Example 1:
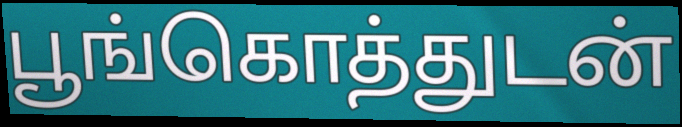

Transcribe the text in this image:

பூங்கொத்துடன்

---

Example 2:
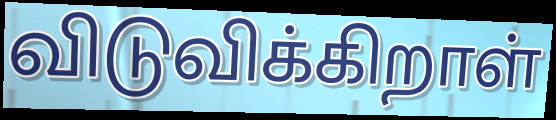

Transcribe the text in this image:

விடுவிக்கிறாள்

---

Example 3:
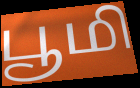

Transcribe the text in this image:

பூமி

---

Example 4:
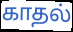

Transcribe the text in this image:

காதல்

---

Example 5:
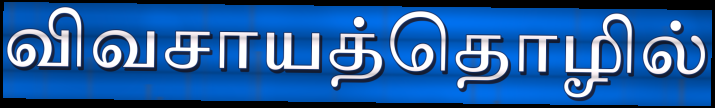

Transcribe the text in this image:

விவசாயத்தொழில்